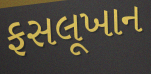
ફસલૂખાન